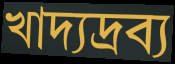
খাদ্যদ্রব্য